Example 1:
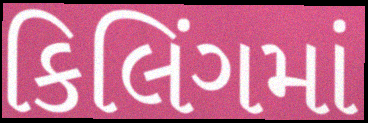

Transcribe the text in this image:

કિલિંગમાં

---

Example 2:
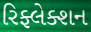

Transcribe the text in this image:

રિફ્લેક્શન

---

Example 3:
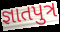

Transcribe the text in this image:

જ્ઞાતપુત્ર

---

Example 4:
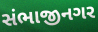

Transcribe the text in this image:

સંભાજીનગર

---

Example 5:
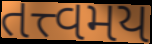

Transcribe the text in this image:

તત્ત્વમય